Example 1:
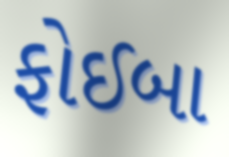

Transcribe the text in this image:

ફોઈબા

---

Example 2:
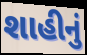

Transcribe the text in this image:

શાહીનું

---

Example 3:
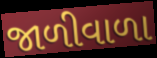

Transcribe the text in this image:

જાળીવાળા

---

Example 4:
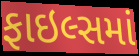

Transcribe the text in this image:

ફાઇલ્સમાં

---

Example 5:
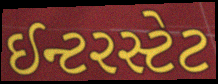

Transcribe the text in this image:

ઈન્ટરસ્ટેટ